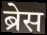
ब्रेस